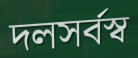
দলসর্বস্ব